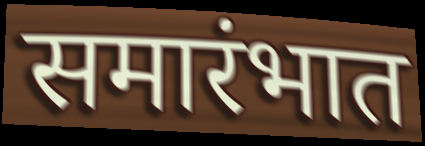
समारंभात